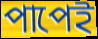
পাপেই